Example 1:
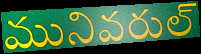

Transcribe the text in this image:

మునివరుల్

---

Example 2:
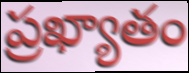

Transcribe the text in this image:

ప్రఖ్యాతం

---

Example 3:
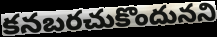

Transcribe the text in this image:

కనబరచుకొందునని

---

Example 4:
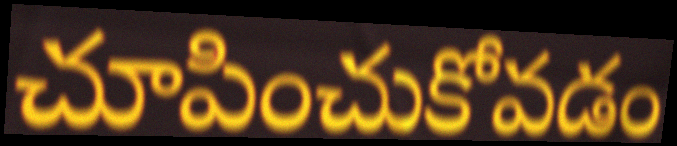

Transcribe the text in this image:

చూపించుకోవడం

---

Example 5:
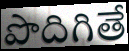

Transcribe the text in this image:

పొదిగితే